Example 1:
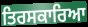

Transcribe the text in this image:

ਤਿਰਸਕਾਰਿਆ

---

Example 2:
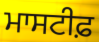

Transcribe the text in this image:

ਮਾਸਟੀਫ਼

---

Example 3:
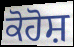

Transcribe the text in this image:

ਕੋਹੋਸ਼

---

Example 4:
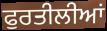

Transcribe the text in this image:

ਫੁਰਤੀਲੀਆਂ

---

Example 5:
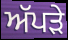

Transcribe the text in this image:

ਅੱਪੜੇ